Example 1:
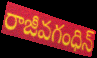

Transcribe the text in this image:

రాజీవగంధిన్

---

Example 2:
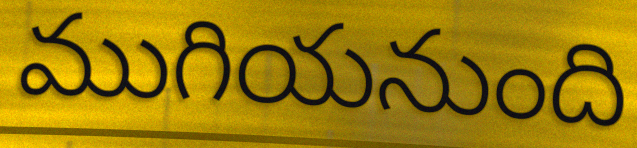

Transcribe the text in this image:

ముగియనుంది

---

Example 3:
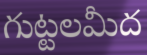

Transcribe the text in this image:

గుట్టలమీద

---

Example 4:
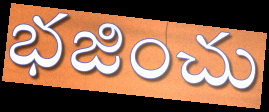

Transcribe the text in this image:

భజించు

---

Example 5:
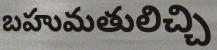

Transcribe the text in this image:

బహుమతులిచ్చి